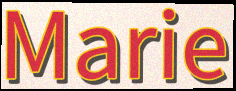
Marie